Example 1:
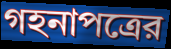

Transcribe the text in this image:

গহনাপত্রের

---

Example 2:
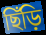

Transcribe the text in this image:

ছিঁড়ি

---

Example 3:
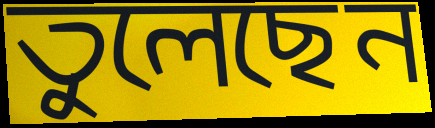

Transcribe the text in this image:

তুলেছেন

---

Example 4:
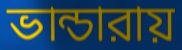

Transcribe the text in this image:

ভান্ডারায়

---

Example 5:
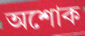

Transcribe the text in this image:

অশোক